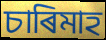
চাৰিমাহ